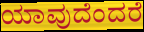
ಯಾವುದೆಂದರೆ